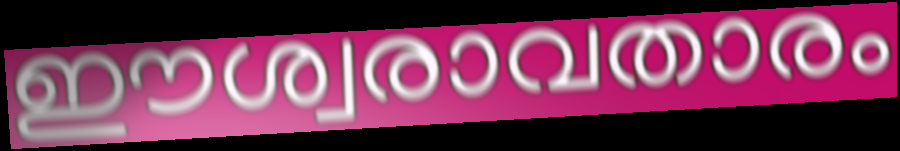
ഈശ്വരാവതാരം